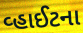
વ્હાઈટના